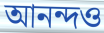
আনন্দও